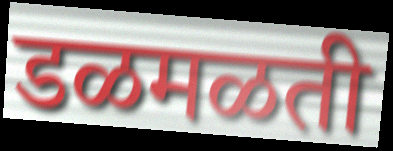
डळमळती